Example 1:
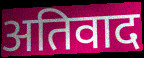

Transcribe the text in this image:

अतिवाद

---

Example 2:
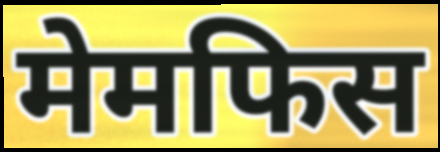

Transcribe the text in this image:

मेमफिस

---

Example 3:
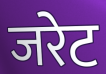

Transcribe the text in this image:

जरेट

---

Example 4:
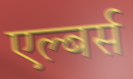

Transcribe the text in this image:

एल्बर्स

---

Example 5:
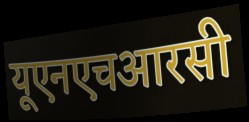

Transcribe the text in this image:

यूएनएचआरसी